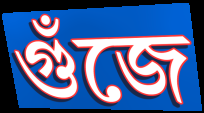
গুঁজে